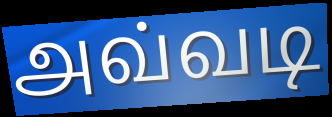
அவ்வடி